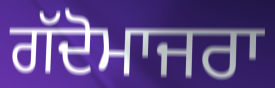
ਗੱਦੋਮਾਜਰਾ